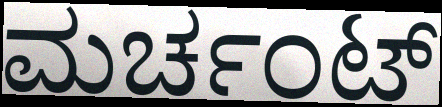
ಮರ್ಚಂಟ್